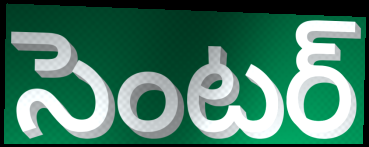
సెంటర్